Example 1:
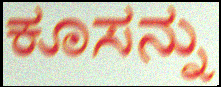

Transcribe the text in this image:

ಕೂಸನ್ನು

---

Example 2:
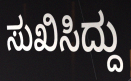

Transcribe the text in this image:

ಸುಖಿಸಿದ್ದು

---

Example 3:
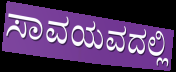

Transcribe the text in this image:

ಸಾವಯವದಲ್ಲಿ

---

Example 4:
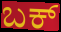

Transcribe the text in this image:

ಬಕ್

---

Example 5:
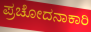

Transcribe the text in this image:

ಪ್ರಚೋದನಾಕಾರಿ